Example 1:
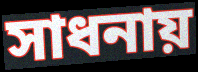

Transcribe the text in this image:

সাধনায়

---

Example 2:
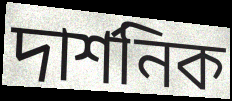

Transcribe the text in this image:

দার্শনিক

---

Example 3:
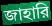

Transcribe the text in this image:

জাহারি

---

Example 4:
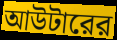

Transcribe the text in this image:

আউটারের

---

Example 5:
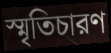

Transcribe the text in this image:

স্মৃতিচারণ